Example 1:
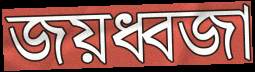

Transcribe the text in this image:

জয়ধ্বজা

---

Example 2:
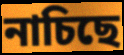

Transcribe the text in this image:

নাচিছে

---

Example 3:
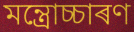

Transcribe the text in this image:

মন্ত্ৰোচ্চাৰণ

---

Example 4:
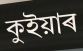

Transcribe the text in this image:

কুইয়াৰ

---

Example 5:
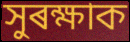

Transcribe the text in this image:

সুৰক্ষাক